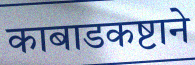
काबाडकष्टाने